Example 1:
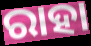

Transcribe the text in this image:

ରାହା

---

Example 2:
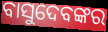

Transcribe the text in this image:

ବାସୁଦେବଙ୍କର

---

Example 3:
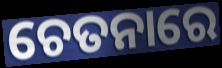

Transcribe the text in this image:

ଚେତନାରେ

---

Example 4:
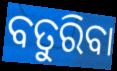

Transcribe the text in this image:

ବତୁରିବା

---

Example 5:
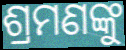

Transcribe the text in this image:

ଶ୍ରମଣଙ୍କୁ